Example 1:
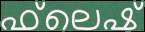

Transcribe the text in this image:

ഫ്‌ലെഷ്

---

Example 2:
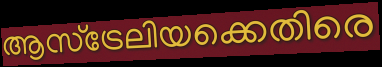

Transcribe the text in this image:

ആസ്ട്രേലിയക്കെതിരെ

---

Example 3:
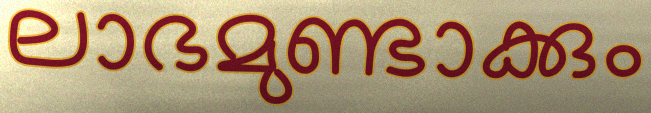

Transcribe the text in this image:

ലാഭമുണ്ടാക്കും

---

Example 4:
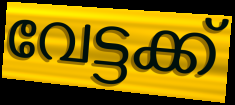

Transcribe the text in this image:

വേട്ടക്ക്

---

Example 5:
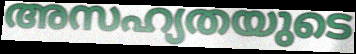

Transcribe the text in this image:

അസഹ്യതയുടെ